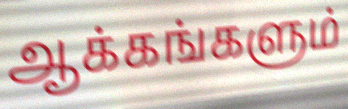
ஆக்கங்களும்